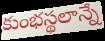
కుంభస్థలాన్నే